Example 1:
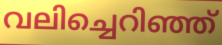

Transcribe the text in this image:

വലിച്ചെറിഞ്ഞ്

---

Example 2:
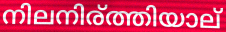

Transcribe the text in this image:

നിലനിര്ത്തിയാല്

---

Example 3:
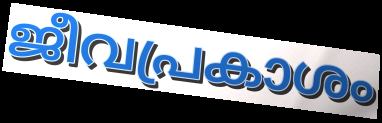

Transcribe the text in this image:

ജീവപ്രകാശം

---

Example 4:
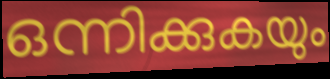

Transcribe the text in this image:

ഒന്നിക്കുകയും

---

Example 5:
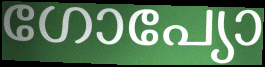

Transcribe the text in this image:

ഗോപ്യോ